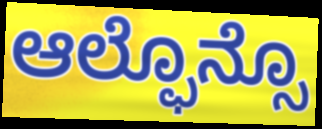
ಆಲ್ಫೊನ್ಸೊ